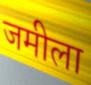
जमीला